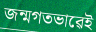
জন্মগতভাৱেই